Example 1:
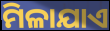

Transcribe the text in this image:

ମିଳାଯାଏ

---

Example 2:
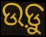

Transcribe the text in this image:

ଉଡ଼ୁ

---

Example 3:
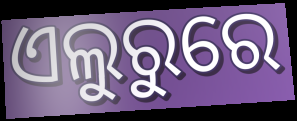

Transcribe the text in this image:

ଏଲୁରୁରେ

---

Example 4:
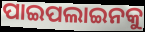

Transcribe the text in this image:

ପାଇପଲାଇନକୁ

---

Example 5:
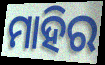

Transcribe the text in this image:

ମାହିର